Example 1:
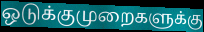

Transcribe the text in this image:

ஒடுக்குமுறைகளுக்கு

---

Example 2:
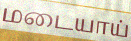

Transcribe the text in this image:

மடையாய்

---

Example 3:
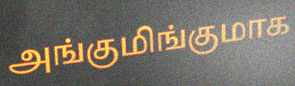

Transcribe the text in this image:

அங்குமிங்குமாக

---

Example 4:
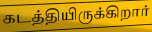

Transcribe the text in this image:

கடத்தியிருக்கிறார்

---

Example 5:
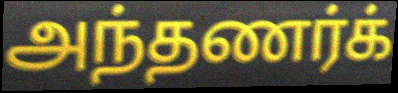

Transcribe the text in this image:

அந்தணர்க்